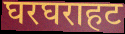
घरघराहट